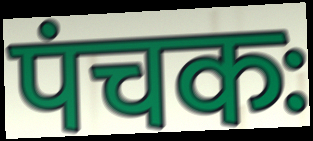
पंचकः